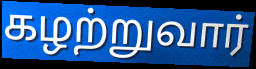
கழற்றுவார்